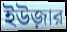
ইউজ়ার